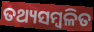
ତଥ୍ୟସମ୍ୱଳିତ